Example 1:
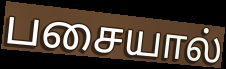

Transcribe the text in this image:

பசையால்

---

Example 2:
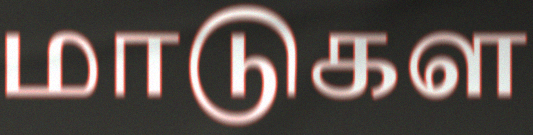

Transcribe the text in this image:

மாடுகள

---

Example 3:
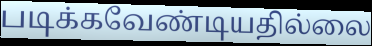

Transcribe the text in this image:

படிக்கவேண்டியதில்லை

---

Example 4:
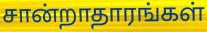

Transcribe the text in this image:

சான்றாதாரங்கள்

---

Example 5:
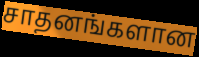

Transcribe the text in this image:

சாதனங்களான